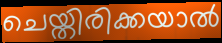
ചെയ്തിരിക്കയാൽ